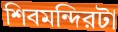
শিবমন্দিরটা